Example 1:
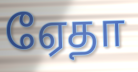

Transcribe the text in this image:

ஏேதா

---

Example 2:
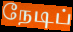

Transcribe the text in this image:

நேடிப்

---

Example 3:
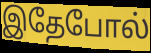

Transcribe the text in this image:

இதேபோல்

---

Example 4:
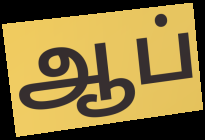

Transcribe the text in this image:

ஆப்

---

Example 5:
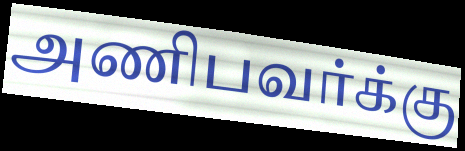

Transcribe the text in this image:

அணிபவர்க்கு